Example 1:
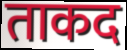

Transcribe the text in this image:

ताकद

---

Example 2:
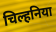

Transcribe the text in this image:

चिल्हनिया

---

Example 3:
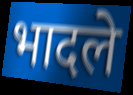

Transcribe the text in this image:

भादले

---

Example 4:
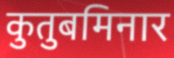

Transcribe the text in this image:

कुतुबमिनार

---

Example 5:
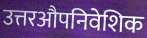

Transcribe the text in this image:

उत्तरऔपनिवेशिक